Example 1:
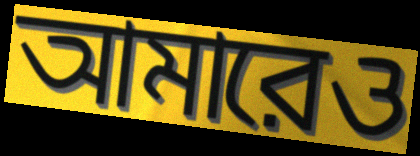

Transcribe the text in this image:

আমারেও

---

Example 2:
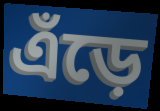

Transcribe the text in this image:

এঁড়ে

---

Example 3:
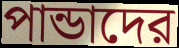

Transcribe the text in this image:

পান্ডাদের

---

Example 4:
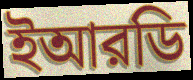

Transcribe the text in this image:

ইআরডি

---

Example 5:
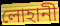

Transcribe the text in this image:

লোহানী